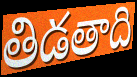
తిడతాది